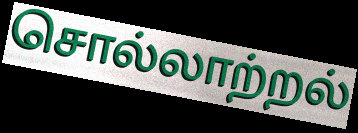
சொல்லாற்றல்